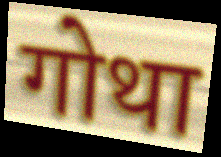
गोथा